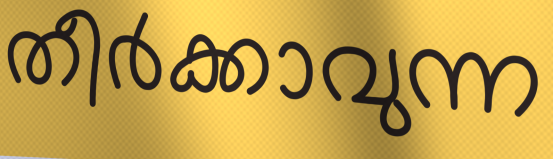
തീർക്കാവുന്ന